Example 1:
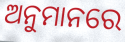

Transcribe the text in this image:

ଅନୁମାନରେ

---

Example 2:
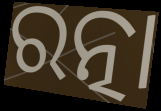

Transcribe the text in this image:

ରତ୍ନା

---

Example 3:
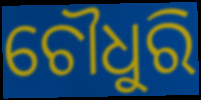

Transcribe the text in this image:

ଚୌଧୁରି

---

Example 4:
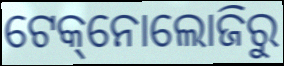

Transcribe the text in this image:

ଟେକ୍‌ନୋଲୋଜିରୁ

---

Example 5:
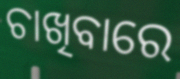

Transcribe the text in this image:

ଚାଖିବାରେ